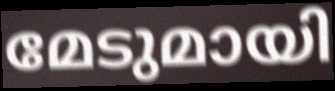
മേടുമായി